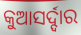
କୁଆସର୍ଦ୍ଦାର